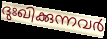
ദുഃഖിക്കുന്നവർ